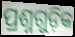
ପ୍ରଶ୍ନଗୁଡ଼ିକ